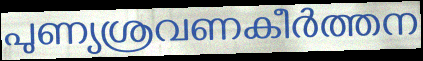
പുണ്യശ്രവണകീർത്തന